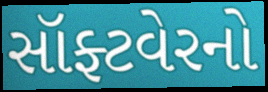
સૉફ્ટવેરનો